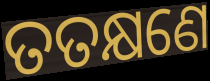
ତତକ୍ଷଣେ